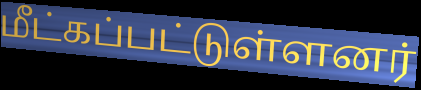
மீட்கப்பட்டுள்ளனர்